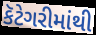
કૅટેગરીમાંથી